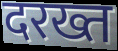
दरख्त